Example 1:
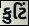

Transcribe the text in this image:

કુટિં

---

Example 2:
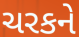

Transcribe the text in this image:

ચરકને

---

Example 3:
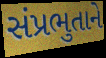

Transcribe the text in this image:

સંપ્રભુતાને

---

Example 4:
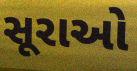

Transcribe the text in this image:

સૂરાઓ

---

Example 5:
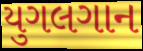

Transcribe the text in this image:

યુગલગાન